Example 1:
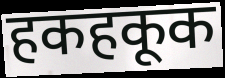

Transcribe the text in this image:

हकहकूक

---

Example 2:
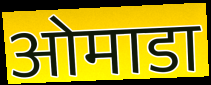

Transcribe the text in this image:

ओमाडा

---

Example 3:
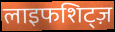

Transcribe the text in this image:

लाइफशिट्ज़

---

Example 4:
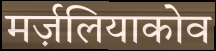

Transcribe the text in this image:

मर्ज़लियाकोव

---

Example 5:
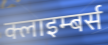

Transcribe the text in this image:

क्लाइम्बर्स